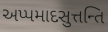
અપ્પમાદસુત્તન્તિ